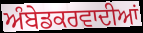
ਅੰਬੇਡਕਰਵਾਦੀਆਂ